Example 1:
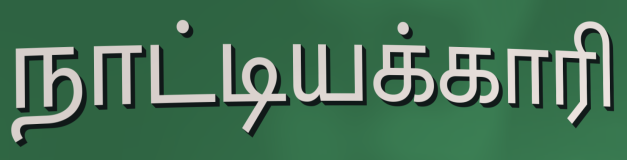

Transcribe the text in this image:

நாட்டியக்காரி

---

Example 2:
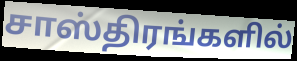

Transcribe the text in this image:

சாஸ்திரங்களில்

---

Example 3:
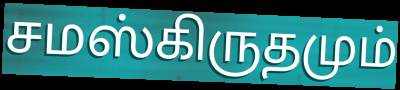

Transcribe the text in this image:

சமஸ்கிருதமும்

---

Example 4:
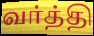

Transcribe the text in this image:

வர்த்தி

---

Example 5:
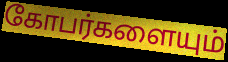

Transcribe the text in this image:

கோபர்களையும்